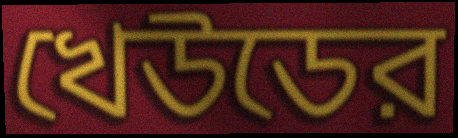
খেউডের